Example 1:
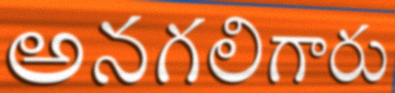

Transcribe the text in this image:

అనగలిగారు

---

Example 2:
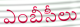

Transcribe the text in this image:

ఎంబీసీలు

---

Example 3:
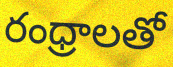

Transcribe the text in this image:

రంధ్రాలతో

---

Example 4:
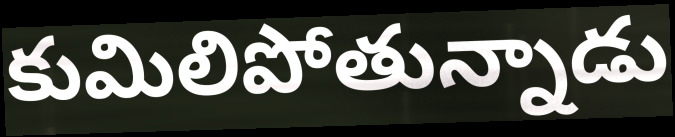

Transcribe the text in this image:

కుమిలిపోతున్నాడు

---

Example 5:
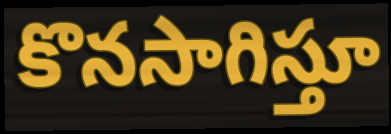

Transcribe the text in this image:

కొనసాగిస్తూ